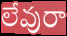
లేవురా